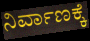
ನಿರ್ವಾಣಕ್ಕೆ